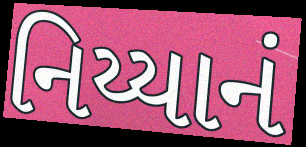
નિય્યાનં